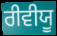
ਰੀਵੀਯੂ